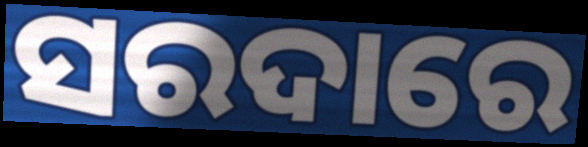
ସରଦାରେ